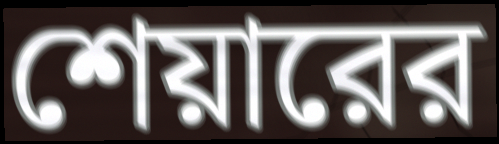
শেয়ারের